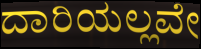
ದಾರಿಯಲ್ಲವೇ